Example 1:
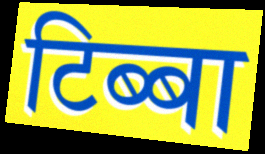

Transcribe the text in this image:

टिब्बा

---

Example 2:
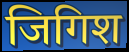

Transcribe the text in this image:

जिगिश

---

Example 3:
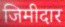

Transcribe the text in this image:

जिमीदार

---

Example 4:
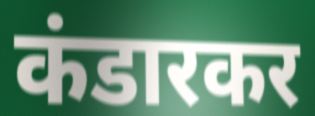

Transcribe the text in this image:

कंडारकर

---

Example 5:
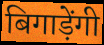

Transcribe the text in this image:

बिगाड़ेंगी